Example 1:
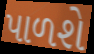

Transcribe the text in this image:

પાળશે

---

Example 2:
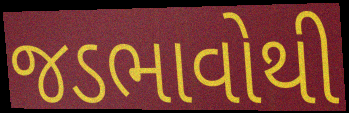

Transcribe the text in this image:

જડભાવોથી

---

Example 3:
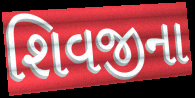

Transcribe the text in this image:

શિવજીના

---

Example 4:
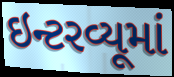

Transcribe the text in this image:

ઇન્ટરવ્યૂમાં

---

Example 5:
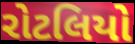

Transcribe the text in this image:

રોટલિયો